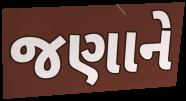
જણાને